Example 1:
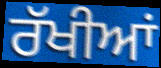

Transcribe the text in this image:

ਰੱਖੀਆਂ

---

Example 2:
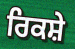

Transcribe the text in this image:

ਰਿਕਸ਼ੇ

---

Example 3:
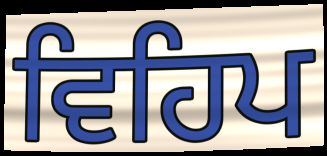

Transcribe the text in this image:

ਵਿਹਿਪ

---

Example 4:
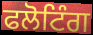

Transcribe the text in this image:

ਫਲੋਟਿੰਗ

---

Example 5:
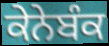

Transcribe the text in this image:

ਕੇਨੇਬੰਕ